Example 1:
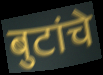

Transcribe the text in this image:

बुटांचे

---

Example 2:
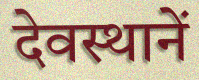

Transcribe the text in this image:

देवस्थानें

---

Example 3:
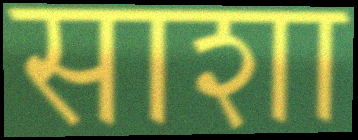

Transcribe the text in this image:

साशा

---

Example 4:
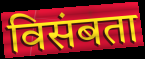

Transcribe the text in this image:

विसंबता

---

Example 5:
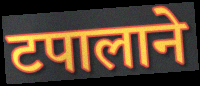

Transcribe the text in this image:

टपालाने